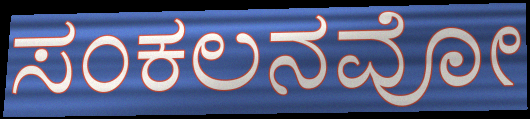
ಸಂಕಲನವೋ